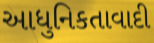
આધુનિકતાવાદી